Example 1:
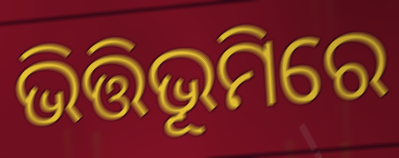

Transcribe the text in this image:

ଭିତ୍ତିଭୂମିରେ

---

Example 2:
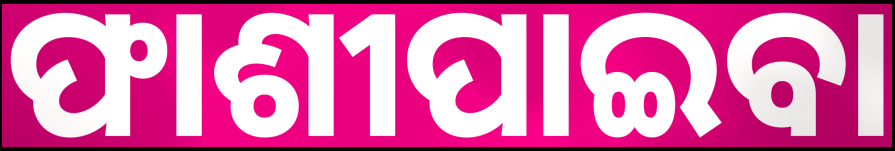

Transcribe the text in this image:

ଫାଶୀପାଇବା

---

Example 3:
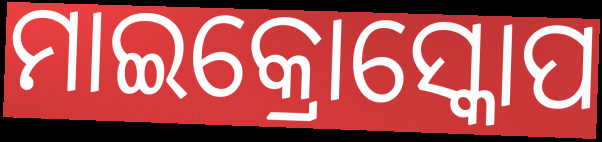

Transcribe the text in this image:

ମାଇକ୍ରୋସ୍କୋପ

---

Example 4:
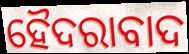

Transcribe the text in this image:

ହୈଦରାବାଦ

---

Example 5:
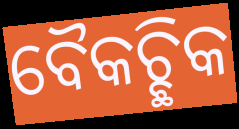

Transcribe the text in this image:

ବୈକଚ୍ଛିକ